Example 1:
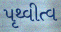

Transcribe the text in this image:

પૃથ્વીત્વ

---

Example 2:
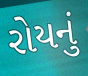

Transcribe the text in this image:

રોયનું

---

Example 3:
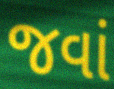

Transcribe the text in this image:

જવાં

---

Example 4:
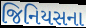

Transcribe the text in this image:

જિનિયસના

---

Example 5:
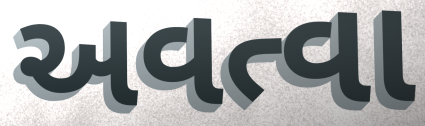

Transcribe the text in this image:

અવત્વા